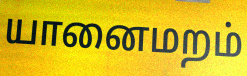
யானைமறம்